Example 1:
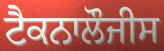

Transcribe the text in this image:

ਟੈਕਨਾਲੌਜੀਸ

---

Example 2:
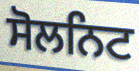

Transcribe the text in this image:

ਸੋਲਨਿਟ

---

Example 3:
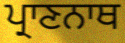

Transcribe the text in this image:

ਪ੍ਰਾਣਨਾਥ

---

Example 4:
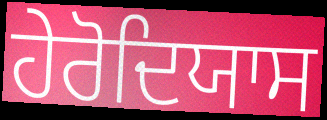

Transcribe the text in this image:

ਹੇਰੋਦਿਯਾਸ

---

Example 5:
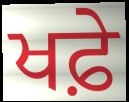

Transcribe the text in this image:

ਖਫ਼ੇ